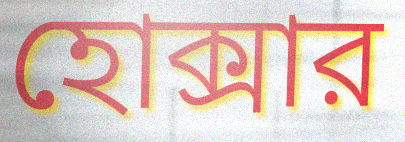
হোক্সার